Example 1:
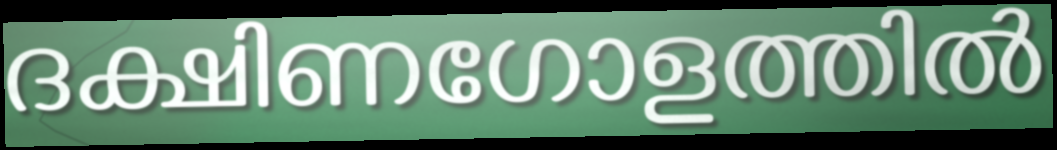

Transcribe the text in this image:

ദക്ഷിണഗോളത്തിൽ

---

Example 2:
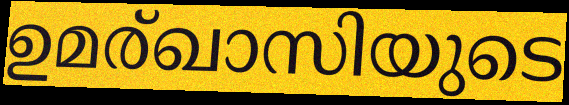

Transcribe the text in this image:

ഉമര്ഖാസിയുടെ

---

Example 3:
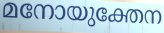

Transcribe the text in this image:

മനോയുക്തേന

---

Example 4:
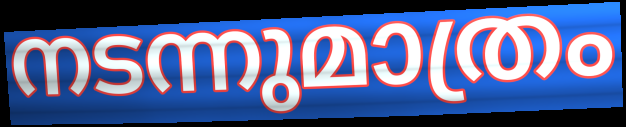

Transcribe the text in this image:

നടന്നുമാത്രം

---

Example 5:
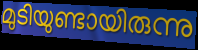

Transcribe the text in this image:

മുടിയുണ്ടായിരുന്നു